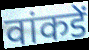
वांकडें